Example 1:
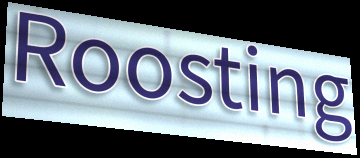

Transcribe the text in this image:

Roosting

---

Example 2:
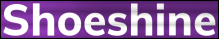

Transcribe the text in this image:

Shoeshine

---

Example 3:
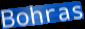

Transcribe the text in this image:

Bohras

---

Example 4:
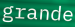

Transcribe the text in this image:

grande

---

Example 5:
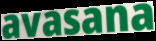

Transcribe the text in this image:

avasana